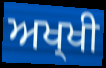
ਅਖ੍ਖੀ